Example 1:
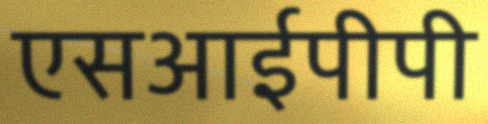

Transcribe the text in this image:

एसआईपीपी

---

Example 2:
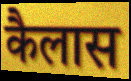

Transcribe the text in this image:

कैलास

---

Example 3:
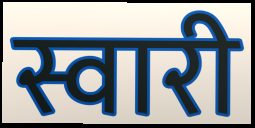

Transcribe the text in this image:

स्वारी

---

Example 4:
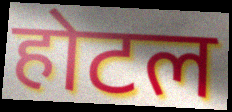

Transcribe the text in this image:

होटल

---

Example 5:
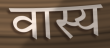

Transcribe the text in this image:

वास्य